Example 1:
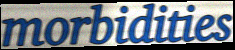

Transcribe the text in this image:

morbidities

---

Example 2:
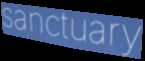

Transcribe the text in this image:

sanctuary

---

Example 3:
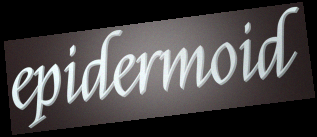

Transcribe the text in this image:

epidermoid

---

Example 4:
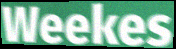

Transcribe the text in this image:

Weekes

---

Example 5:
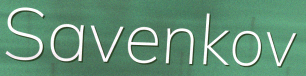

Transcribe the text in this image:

Savenkov